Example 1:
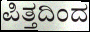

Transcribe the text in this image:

ಪಿತ್ತದಿಂದ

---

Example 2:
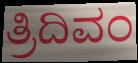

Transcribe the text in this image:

ತ್ರಿದಿವಂ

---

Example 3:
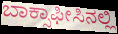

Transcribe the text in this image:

ಬಾಕ್ಸಾಫೀಸಿನಲ್ಲಿ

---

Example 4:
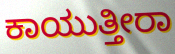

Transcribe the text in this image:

ಕಾಯುತ್ತೀರಾ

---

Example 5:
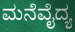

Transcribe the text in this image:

ಮನೆವೈದ್ಯ